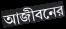
আজীবনের